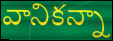
వానికన్నా